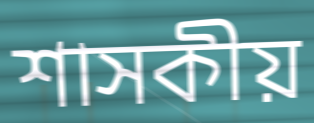
শাসকীয়